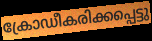
ക്രോഡീകരിക്കപ്പെട്ടു